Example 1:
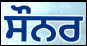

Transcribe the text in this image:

ਸੌਨਰ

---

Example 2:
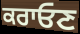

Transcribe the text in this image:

ਕਰਾਓਣ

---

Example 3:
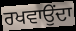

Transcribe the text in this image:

ਰਖਵਾਉਂਦਾ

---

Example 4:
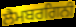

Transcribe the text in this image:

ਲੈਮਬਰਗਿਨੀ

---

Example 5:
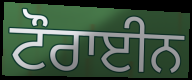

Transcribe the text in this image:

ਟੌਰਾਈਨ